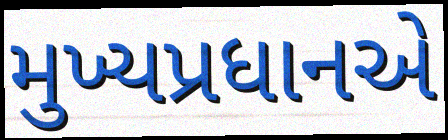
મુખ્યપ્રધાનએ